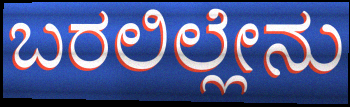
ಬರಲಿಲ್ಲೇನು